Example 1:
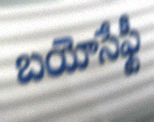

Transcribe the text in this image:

బయోసేఫ్టీ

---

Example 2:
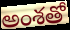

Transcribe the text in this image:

అంశతో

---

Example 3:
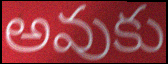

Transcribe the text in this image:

అవుకు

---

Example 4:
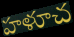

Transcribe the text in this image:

హళూచ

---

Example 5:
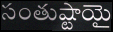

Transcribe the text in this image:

సంతుష్టాయై